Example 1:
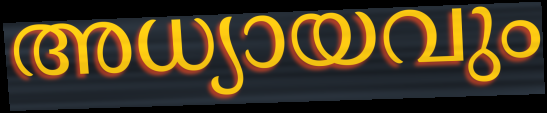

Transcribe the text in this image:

അധ്യായവും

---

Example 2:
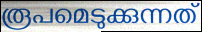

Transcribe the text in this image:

രൂപമെടുക്കുന്നത്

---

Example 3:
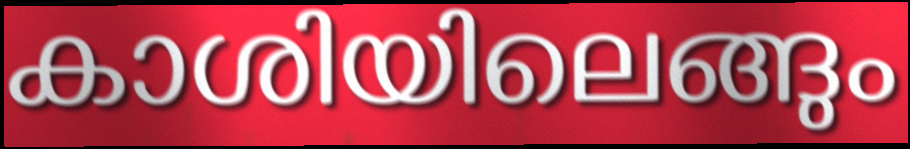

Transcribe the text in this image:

കാശിയിലെങ്ങും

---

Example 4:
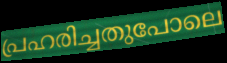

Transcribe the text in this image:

പ്രഹരിച്ചതുപോലെ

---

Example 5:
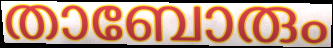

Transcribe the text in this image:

താബോരും